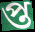
প্ত